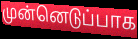
முன்னெடுப்பாக